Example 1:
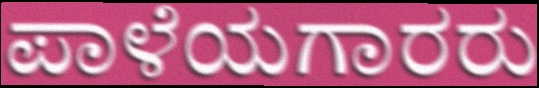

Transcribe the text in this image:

ಪಾಳೆಯಗಾರರು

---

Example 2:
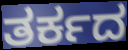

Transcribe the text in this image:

ತರ್ಕದ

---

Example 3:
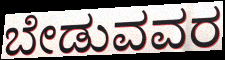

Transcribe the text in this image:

ಬೇಡುವವರ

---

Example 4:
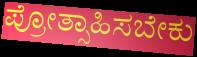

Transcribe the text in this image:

ಪ್ರೋತ್ಸಾಹಿಸಬೇಕು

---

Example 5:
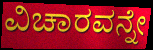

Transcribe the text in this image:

ವಿಚಾರವನ್ನೇ